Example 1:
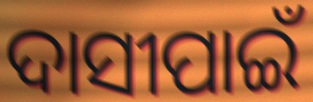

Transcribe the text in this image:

ଦାସୀପାଇଁ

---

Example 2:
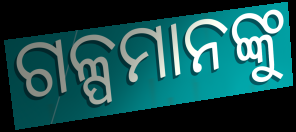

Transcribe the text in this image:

ଗଳ୍ପମାନଙ୍କୁ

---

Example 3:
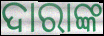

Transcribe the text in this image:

ଦାରାଙ୍କ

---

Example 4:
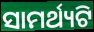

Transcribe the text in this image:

ସାମର୍ଥ୍ୟଟି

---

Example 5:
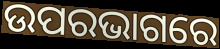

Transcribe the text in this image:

ଉପରଭାଗରେ